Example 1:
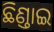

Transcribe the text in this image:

ଛିଣ୍ଡାଇ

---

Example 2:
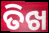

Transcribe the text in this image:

ତିଖ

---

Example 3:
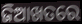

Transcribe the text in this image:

ଜିଆଖତରେ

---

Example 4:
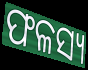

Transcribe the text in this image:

ଫଳସ୍ୟ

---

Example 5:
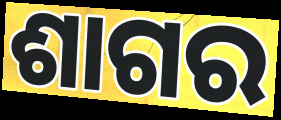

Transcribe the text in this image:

ଶାଗର